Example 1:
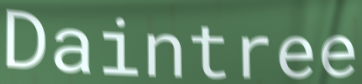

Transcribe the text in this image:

Daintree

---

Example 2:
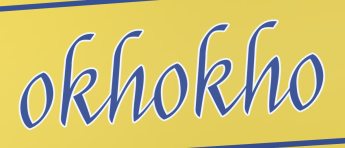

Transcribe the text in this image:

okhokho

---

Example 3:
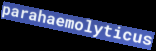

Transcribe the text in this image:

parahaemolyticus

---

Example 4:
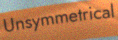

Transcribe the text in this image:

Unsymmetrical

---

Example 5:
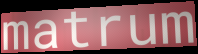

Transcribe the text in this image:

matrum